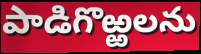
పాడిగొఱ్ఱలను